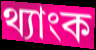
থ্যাংক